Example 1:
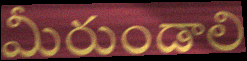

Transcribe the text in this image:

మీరుండాలి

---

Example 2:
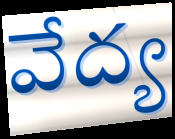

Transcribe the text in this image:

వేద్య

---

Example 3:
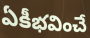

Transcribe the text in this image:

ఏకీభవించే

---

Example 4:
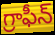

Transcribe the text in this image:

గ్రాఫీన్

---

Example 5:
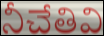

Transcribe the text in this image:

నీచేతివి